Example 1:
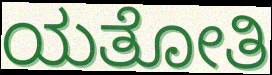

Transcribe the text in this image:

ಯತೋತಿ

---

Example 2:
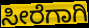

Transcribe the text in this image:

ಸೀರೆಗಾಗಿ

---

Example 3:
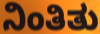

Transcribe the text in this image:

ನಿಂತಿತು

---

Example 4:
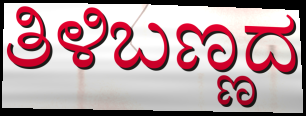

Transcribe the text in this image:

ತಿಳಿಬಣ್ಣದ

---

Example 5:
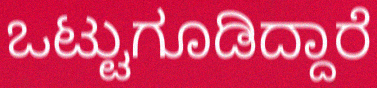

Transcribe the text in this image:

ಒಟ್ಟುಗೂಡಿದ್ದಾರೆ